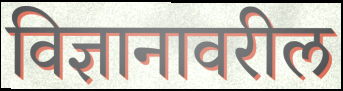
विज्ञानावरील